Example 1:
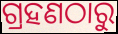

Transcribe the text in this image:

ଗ୍ରହଣଠାରୁ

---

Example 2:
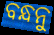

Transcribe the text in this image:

ବନ୍ଧନୁ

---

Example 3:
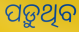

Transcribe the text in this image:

ପଡ଼ୁଥିବ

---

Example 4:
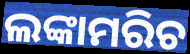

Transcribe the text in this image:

ଲଙ୍କାମରିଚ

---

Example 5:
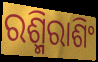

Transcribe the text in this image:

ରଶ୍ମିରାଶିଂ